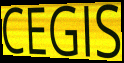
CEGIS